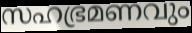
സഹഭ്രമണവും